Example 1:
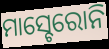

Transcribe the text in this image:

ମାସ୍ଚେରୋନି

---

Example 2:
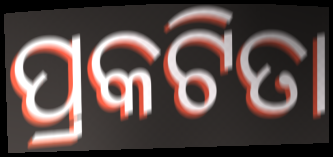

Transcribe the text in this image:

ପ୍ରକଟିତା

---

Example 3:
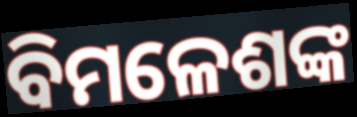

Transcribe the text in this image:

ବିମଳେଶଙ୍କ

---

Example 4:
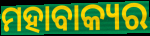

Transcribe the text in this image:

ମହାବାକ୍ୟର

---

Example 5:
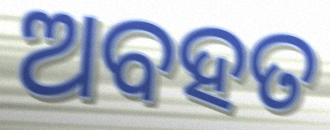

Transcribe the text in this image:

ଅବହତ